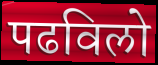
पढविलो